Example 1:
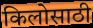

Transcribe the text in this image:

किलोसाठी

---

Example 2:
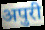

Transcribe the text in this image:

अपुरी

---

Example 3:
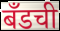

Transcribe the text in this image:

बँडची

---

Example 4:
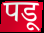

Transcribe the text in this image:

पडू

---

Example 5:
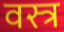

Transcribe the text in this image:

वस्त्र